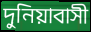
দুনিয়াবাসী